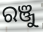
ରଞ୍ଜୁ